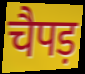
चैपड़